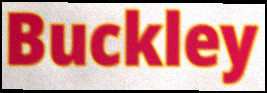
Buckley